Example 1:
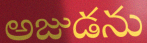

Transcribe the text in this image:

అజుడను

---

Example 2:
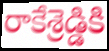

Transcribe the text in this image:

రాకేశ్రెడ్డికి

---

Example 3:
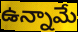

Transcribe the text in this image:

ఉన్నామే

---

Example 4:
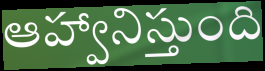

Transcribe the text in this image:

ఆహ్వానిస్తుంది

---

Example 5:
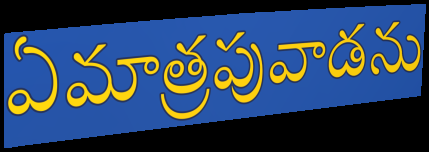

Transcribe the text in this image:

ఏమాత్రపువాడను